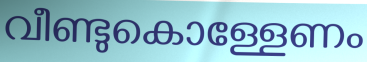
വീണ്ടുകൊള്ളേണം